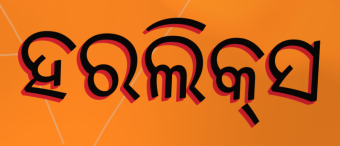
ହରଲିକ୍‍ସ